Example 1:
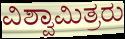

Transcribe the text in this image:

ವಿಶ್ವಾಮಿತ್ರರು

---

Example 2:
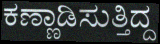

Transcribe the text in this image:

ಕಣ್ಣಾಡಿಸುತ್ತಿದ್ದ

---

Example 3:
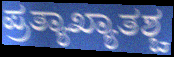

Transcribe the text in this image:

ಪ್ರತ್ಯಾಖ್ಯಾತಶ್ಚ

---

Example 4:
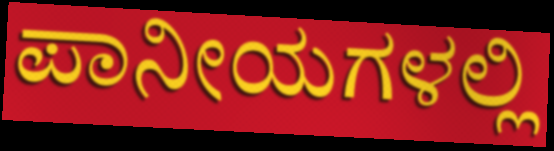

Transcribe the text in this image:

ಪಾನೀಯಗಳಲ್ಲಿ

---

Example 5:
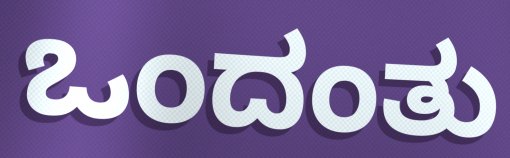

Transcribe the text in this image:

ಒಂದಂತು